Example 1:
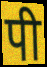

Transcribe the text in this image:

पी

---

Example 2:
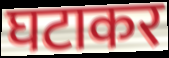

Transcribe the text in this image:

घटाकर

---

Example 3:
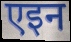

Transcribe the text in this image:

एइन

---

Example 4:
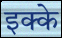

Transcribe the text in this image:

इक्के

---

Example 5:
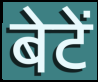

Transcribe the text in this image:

बेटें